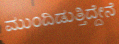
ಮುಂದಿಡುತ್ತಿದ್ದೇನೆ